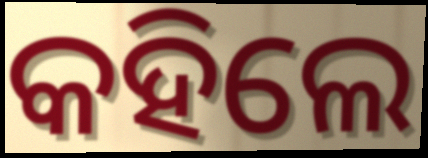
କହିଲେ